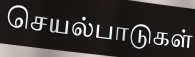
செயல்பாடுகள்